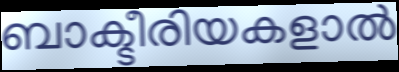
ബാക്ടീരിയകളാൽ